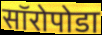
सॉरोपोडा